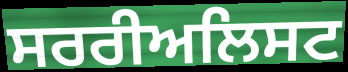
ਸਰਰੀਅਲਿਸਟ